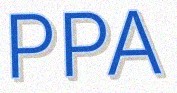
PPA